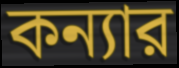
কন্যার